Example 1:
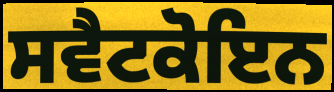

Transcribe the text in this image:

ਸਵੈਟਕੋਇਨ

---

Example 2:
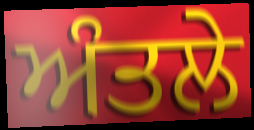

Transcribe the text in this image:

ਅੰਤਲੇ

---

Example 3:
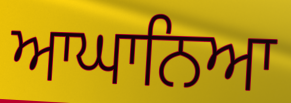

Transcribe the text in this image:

ਆਘਾਨਿਆ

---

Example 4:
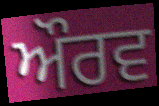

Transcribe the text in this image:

ਔਰਵ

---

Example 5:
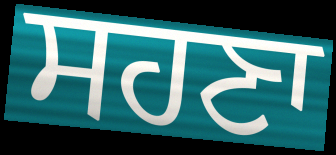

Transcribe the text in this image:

ਸਹਣਾ